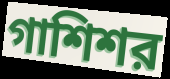
গাশিশর